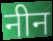
नीन